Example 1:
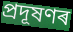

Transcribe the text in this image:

প্ৰদূষণৰ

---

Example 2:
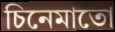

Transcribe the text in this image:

চিনেমাতো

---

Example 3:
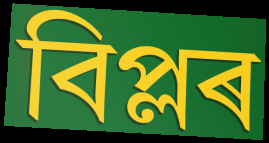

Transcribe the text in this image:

বিপ্লৰ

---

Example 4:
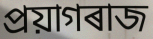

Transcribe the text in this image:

প্ৰয়াগৰাজ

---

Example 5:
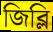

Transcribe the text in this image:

জিব্লি